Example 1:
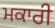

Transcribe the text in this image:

ਮਕਾਰੀ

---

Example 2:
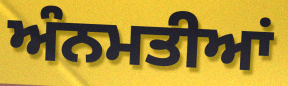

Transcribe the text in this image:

ਅੰਨਮਤੀਆਂ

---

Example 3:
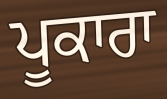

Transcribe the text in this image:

ਪੂਕਾਰਾ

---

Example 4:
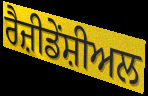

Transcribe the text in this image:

ਰੈਜ਼ੀਡੇਂਸ਼ੀਅਲ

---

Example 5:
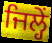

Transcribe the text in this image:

ਜਿਲ੍ਹੇਂ